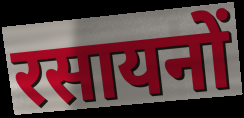
रसायनों